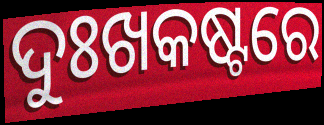
ଦୁଃଖକଷ୍ଟରେ